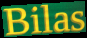
Bilas